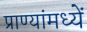
प्राण्यांमध्यें